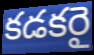
కడకరై